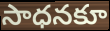
సాధనకూ